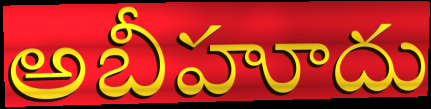
అబీహూదు